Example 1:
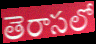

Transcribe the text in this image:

తెరాసలో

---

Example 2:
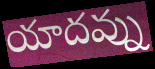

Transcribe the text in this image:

యాదవ్ను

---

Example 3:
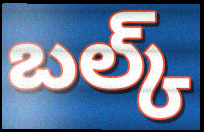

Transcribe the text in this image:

బల్క్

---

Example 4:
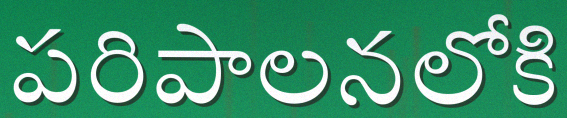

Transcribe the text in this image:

పరిపాలనలోకి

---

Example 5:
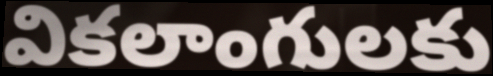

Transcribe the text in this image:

వికలాంగులకు